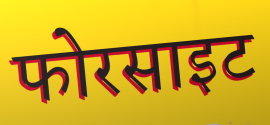
फोरसाइट